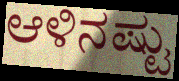
ಆಳಿನಷ್ಟು